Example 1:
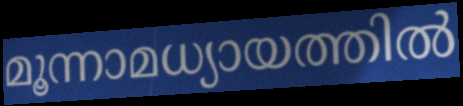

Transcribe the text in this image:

മൂന്നാമധ്യായത്തിൽ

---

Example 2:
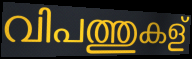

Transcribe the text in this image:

വിപത്തുകള്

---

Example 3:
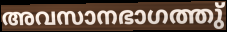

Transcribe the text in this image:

അവസാനഭാഗത്തു്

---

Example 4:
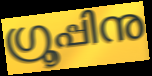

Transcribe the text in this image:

ഗ്രൂപ്പിനു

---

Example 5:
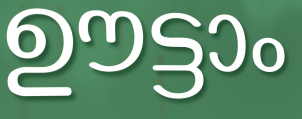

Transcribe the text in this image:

ഊട്ടാം